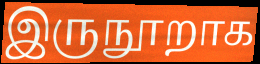
இருநூறாக